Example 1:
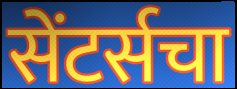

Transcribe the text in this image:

सेंटर्सचा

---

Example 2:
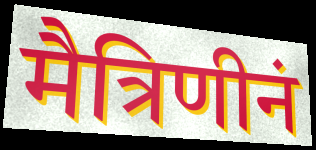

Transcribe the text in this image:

मैत्रिणीनं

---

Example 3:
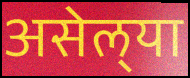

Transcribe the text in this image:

असेल्या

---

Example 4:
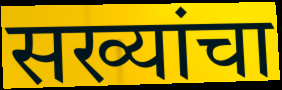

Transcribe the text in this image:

सख्यांचा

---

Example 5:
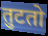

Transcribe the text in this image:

तुटतो